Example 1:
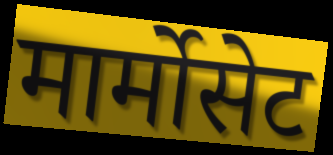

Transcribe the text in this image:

मार्मोसेट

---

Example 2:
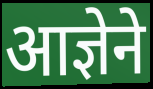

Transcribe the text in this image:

आज्ञेने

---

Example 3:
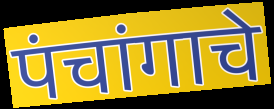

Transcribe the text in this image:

पंचांगाचे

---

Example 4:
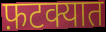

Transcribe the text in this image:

फ़टक्यात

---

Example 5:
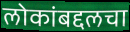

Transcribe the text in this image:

लोकांबद्दलचा